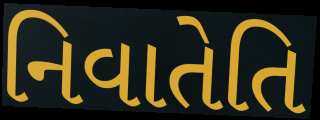
નિવાતેતિ